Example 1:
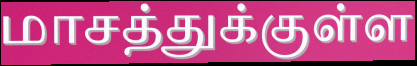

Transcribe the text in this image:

மாசத்துக்குள்ள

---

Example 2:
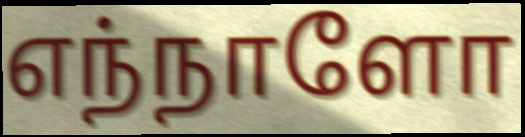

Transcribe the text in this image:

எந்நாளோ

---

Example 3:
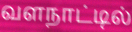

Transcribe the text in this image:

வளநாட்டில்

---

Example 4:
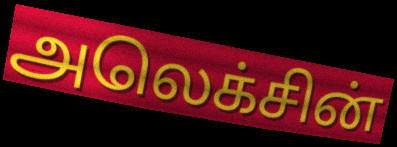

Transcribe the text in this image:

அலெக்சின்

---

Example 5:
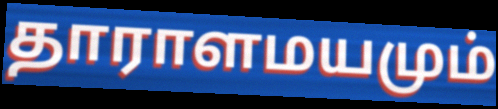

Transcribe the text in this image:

தாராளமயமும்